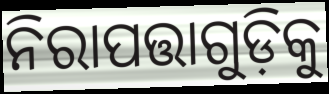
ନିରାପତ୍ତାଗୁଡ଼ିକୁ